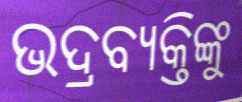
ଭଦ୍ରବ୍ୟକ୍ତିଙ୍କୁ